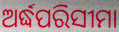
ଅର୍ଦ୍ଧପରିସୀମା